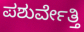
ಪಶುರ್ವೇತ್ತಿ